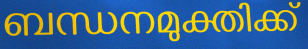
ബന്ധനമുക്തിക്ക്